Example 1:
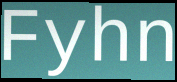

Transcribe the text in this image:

Fyhn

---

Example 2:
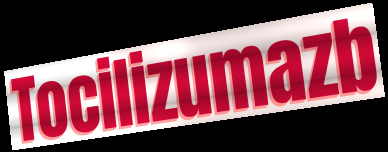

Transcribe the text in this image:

Tocilizumazb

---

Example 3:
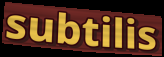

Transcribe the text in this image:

subtilis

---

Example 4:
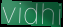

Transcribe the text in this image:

vidhi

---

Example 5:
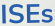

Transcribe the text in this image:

ISEs